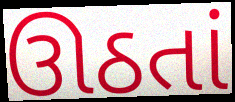
ઊઠતાં